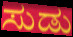
ಸುಡು